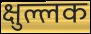
क्षुल्लक